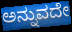
ಅನ್ನುವದೇ